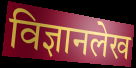
विज्ञानलेख